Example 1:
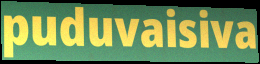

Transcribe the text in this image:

puduvaisiva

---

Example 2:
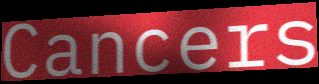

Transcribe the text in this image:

Cancers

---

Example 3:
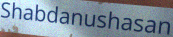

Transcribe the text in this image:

Shabdanushasan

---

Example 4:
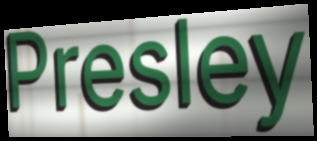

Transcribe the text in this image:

Presley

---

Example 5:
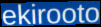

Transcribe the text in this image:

ekirooto